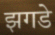
झगडे